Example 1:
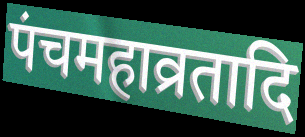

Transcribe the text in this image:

पंचमहाव्रतादि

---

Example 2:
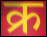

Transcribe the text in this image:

क्र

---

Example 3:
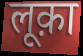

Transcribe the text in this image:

लूक़ा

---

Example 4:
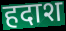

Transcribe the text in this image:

हदाश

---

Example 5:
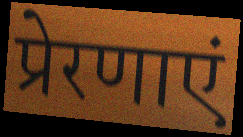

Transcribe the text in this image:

प्रेरणाएं